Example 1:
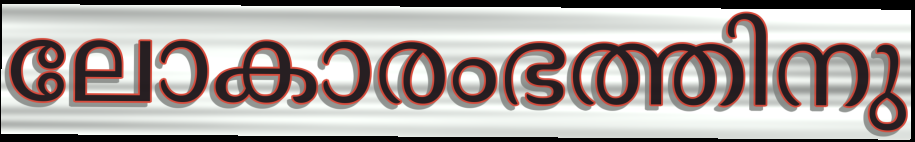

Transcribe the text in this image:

ലോകാരംഭത്തിനു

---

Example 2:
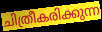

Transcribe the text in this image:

ചിത്രീകരിക്കുന്ന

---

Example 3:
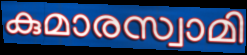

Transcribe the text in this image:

കുമാരസ്വാമി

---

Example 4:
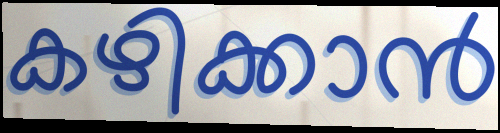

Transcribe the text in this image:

കഴിക്കാൻ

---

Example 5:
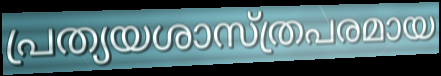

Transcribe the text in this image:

പ്രത്യയശാസ്ത്രപരമായ